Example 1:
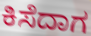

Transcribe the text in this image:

ಕಿಸೆದಾಗ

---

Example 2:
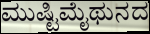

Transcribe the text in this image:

ಮುಷ್ಟಿಮೈಥುನದ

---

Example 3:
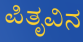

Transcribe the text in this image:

ಪಿತೃವಿನ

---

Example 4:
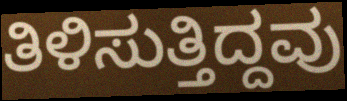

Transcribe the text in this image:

ತಿಳಿಸುತ್ತಿದ್ದವು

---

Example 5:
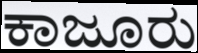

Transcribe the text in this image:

ಕಾಜೂರು